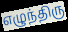
எழுந்திரு